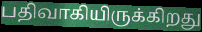
பதிவாகியிருக்கிறது